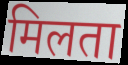
मिलता